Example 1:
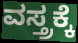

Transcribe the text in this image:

ವಸ್ತ್ರಕ್ಕೆ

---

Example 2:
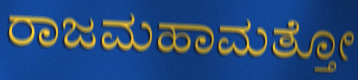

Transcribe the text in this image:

ರಾಜಮಹಾಮತ್ತೋ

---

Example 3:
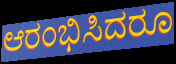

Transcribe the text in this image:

ಆರಂಭಿಸಿದರೂ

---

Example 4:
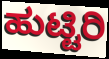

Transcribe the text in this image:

ಹುಟ್ಟಿರಿ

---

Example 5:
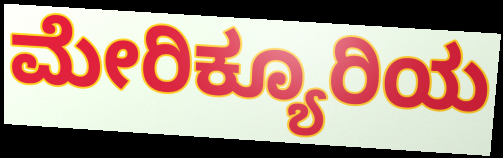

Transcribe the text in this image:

ಮೇರಿಕ್ಯೂರಿಯ